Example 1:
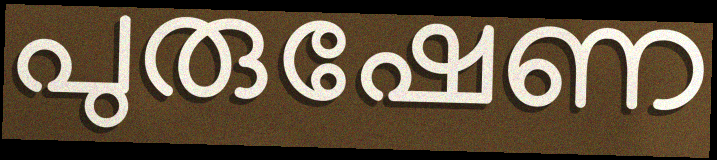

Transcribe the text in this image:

പുരുഷേണ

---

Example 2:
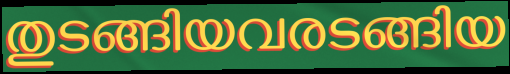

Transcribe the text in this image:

തുടങ്ങിയവരടങ്ങിയ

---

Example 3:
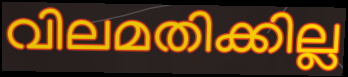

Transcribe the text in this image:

വിലമതിക്കില്ല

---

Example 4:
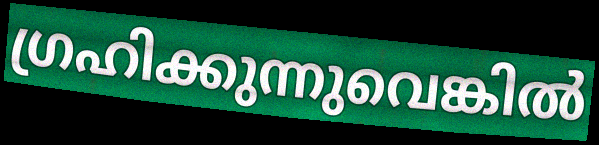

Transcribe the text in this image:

ഗ്രഹിക്കുന്നുവെങ്കിൽ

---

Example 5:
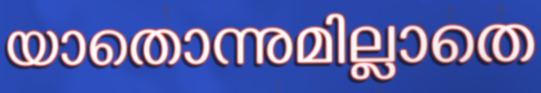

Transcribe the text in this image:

യാതൊന്നുമില്ലാതെ